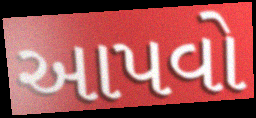
આપવો